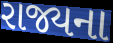
રાજ્યના